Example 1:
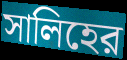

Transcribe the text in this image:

সালিহের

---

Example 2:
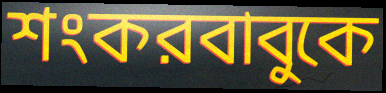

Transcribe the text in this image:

শংকরবাবুকে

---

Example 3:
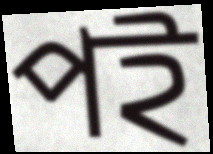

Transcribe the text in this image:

পই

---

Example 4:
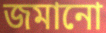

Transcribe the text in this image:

জমানো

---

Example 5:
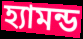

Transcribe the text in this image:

হ্যামন্ড